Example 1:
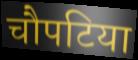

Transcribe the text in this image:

चौपटिया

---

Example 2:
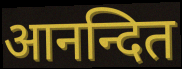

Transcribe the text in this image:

आनन्दित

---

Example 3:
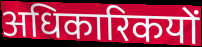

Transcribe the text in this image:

अधिकारिकयों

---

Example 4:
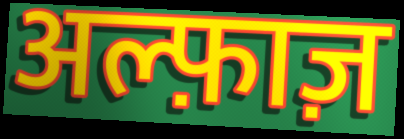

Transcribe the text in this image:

अल्फ़ाज़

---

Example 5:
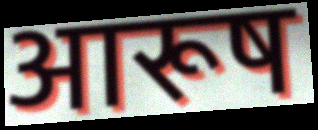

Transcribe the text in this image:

आरूष